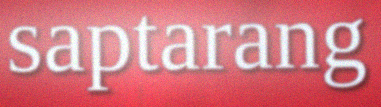
saptarang